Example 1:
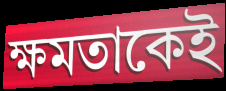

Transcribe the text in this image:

ক্ষমতাকেই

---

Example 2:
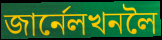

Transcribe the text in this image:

জাৰ্নেলখনলৈ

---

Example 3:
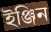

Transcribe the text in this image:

ইঞ্জিন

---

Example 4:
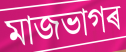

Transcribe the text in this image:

মাজভাগৰ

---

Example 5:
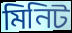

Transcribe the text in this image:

মিনিট